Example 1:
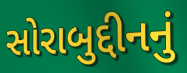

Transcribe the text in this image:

સોરાબુદ્દીનનું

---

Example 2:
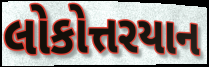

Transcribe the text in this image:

લોકોત્તરયાન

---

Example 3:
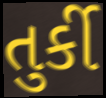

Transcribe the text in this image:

તુર્કી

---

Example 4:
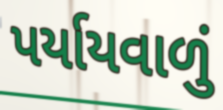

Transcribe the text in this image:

પર્યાયવાળું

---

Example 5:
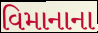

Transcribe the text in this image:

વિમાનાના